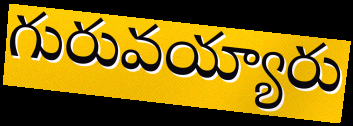
గురువయ్యారు